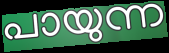
പായുന്ന